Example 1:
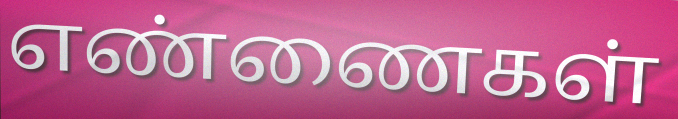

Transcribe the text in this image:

எண்ணைகள்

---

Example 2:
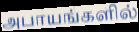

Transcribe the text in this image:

அபாயங்களில்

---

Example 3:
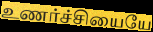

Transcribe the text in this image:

உணர்ச்சியையே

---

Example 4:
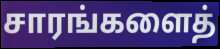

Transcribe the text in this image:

சாரங்களைத்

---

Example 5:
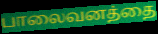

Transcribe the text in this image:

பாலைவனத்தை